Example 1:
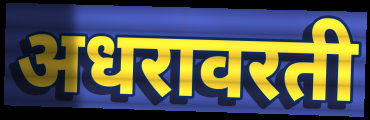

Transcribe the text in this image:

अधरावरती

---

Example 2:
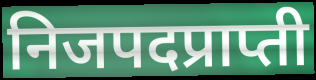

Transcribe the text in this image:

निजपदप्राप्ती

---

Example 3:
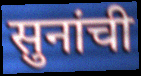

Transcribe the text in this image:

सुनांची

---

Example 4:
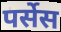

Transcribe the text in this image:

पर्सेस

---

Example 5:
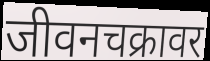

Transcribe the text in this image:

जीवनचक्रावर